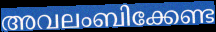
അവലംബിക്കേണ്ട